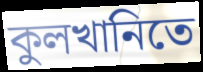
কুলখানিতে